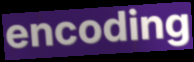
encoding